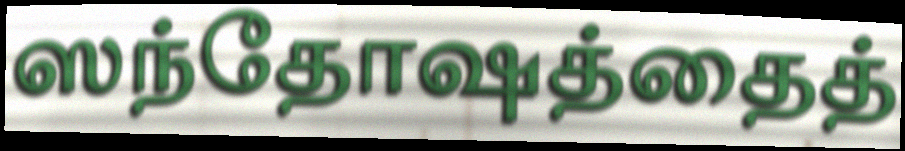
ஸந்தோஷத்தைத்